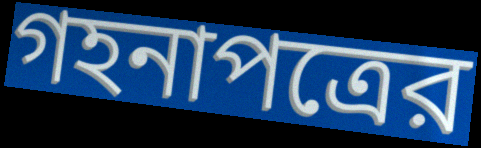
গহনাপত্রের